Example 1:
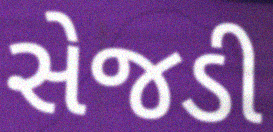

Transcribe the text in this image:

સેજડી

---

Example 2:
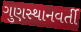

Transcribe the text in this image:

ગુણસ્થાનવર્તી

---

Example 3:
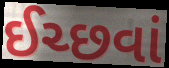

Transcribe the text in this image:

ઈચ્છવાં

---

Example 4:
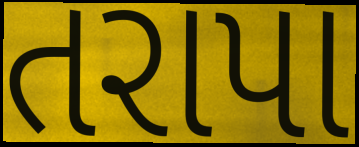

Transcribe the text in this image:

તરાપા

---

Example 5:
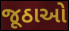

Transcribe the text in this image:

જૂઠાઓ